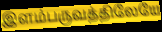
இளம்பருவத்திலேயே